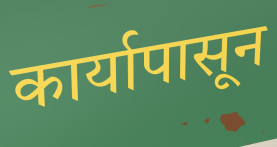
कार्यापासून